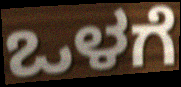
ಒಳಗೆ